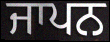
ਜਾਪਨ